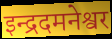
इन्द्रदमनेश्वर